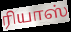
ரியாஸ்